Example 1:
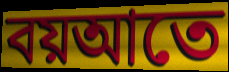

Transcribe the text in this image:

বয়আতে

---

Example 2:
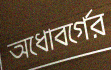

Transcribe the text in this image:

অধোবর্গের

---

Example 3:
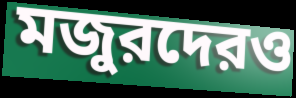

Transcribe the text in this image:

মজুরদেরও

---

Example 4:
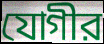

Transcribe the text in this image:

যোগীর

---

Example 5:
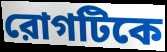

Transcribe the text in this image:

রোগটিকে